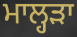
ਮਾਲ੍ਹੜਾ